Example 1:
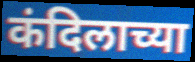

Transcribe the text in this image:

कंदिलाच्या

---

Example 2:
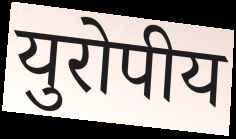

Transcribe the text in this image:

युरोपीय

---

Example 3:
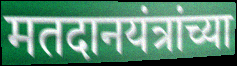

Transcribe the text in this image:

मतदानयंत्रांच्या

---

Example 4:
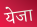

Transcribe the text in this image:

येजा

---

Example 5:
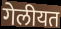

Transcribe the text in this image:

गेलीयत